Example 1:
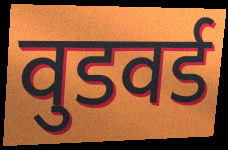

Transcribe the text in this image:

वुडवर्ड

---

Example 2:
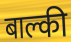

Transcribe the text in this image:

बाल्‍की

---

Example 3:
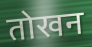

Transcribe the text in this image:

तोखन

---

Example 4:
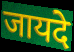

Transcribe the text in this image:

जायदे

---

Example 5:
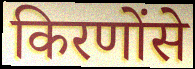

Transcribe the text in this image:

किरणोंसे